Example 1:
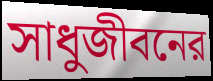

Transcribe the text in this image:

সাধুজীবনের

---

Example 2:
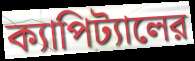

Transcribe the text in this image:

ক্যাপিট্যালের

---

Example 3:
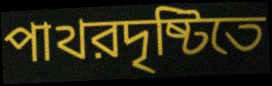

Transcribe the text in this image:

পাথরদৃষ্টিতে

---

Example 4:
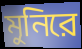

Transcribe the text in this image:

মুনিরে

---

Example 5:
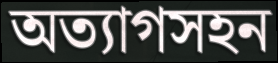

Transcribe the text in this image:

অত্যাগসহন